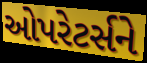
ઓપરેટર્સને